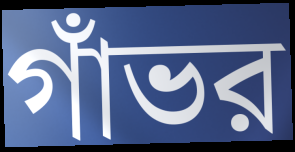
গাঁভর